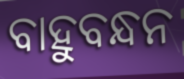
ବାହୁବନ୍ଧନ